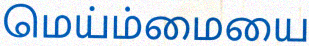
மெய்ம்மையை